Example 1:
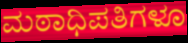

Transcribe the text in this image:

ಮಠಾಧಿಪತಿಗಳೂ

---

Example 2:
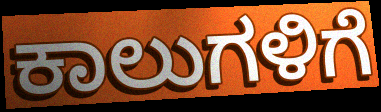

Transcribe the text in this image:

ಕಾಲುಗಳಿಗೆ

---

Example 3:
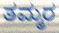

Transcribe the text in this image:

ತಮ್ಮರ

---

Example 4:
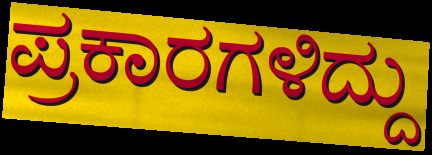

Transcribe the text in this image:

ಪ್ರಕಾರಗಳಿದ್ದು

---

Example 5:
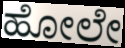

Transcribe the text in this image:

ಹೋಲೇ